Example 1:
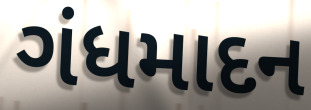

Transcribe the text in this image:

ગંધમાદન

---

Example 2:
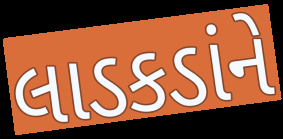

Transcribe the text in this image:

લાડકડાંને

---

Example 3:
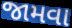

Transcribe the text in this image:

જામવા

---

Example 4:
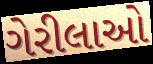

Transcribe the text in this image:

ગેરીલાઓ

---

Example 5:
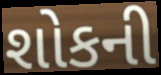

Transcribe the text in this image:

શોકની